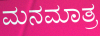
ಮನಮಾತ್ರ